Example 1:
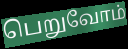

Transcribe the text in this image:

பெறுவோம்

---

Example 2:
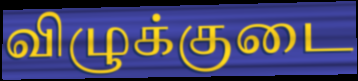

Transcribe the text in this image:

விழுக்குடை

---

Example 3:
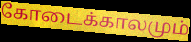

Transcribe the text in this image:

கோடைக்காலமும்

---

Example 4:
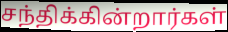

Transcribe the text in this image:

சந்திக்கின்றார்கள்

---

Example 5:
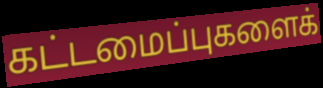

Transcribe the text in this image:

கட்டமைப்புகளைக்